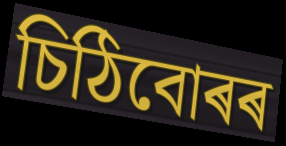
চিঠিবোৰৰ